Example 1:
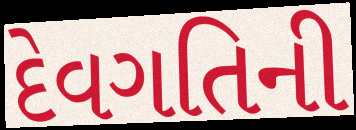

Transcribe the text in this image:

દેવગતિની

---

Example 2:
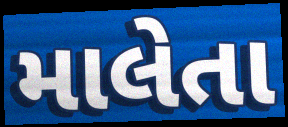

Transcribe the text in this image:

માલેતા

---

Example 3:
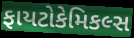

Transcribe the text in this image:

ફાયટોકેમિકલ્સ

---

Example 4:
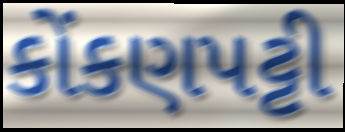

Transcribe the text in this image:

કોંકણપટ્ટી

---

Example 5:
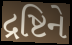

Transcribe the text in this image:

દ્રષ્ટિને